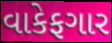
વાકેફગાર